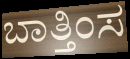
ಬಾತ್ತಿಂಸ